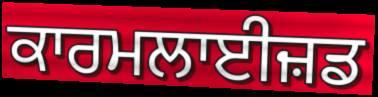
ਕਾਰਮਲਾਈਜ਼ਡ